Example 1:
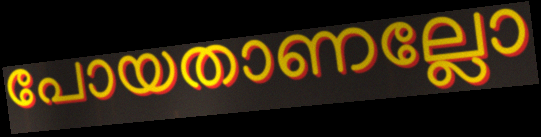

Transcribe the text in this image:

പോയതാണല്ലോ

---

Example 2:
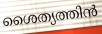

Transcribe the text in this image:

ശൈത്യത്തിൻ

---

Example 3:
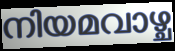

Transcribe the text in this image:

നിയമവാഴ്ച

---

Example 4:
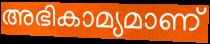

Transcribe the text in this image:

അഭികാമ്യമാണ്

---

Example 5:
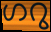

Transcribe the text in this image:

ഗറു